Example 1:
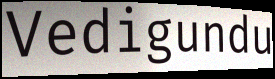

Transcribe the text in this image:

Vedigundu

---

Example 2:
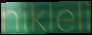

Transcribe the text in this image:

nikleli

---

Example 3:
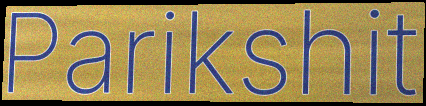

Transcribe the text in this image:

Parikshit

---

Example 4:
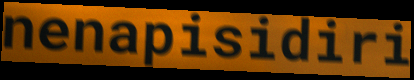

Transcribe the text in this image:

nenapisidiri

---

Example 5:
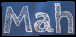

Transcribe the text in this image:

Mah